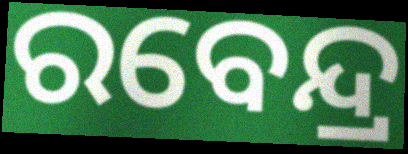
ରବେନ୍ଦ୍ର